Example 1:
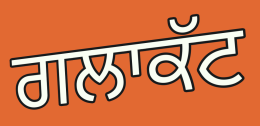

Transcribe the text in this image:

ਗਲਾਕੱਟ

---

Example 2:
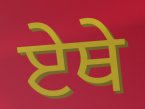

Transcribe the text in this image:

ਏਥੇ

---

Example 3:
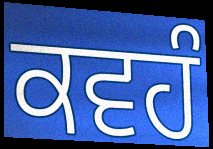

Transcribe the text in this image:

ਕਵਹੰ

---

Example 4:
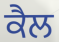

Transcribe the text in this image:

ਕੈਲ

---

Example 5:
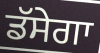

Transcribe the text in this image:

ਡੱਸੇਗਾ